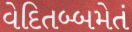
વેદિતબ્બમેતં